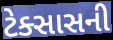
ટેક્સાસની